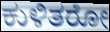
ಕುಳಿತರೋ